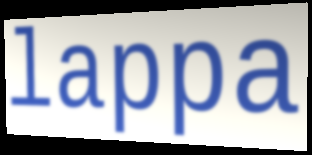
lappa